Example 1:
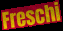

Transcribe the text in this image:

Freschi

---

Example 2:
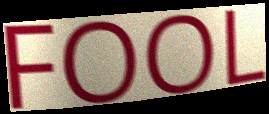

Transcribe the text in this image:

FOOL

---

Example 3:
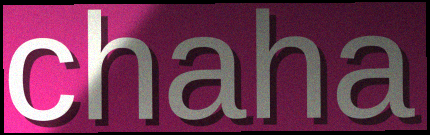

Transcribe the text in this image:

chaha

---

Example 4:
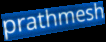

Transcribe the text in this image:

prathmesh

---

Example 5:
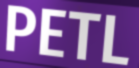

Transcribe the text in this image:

PETL